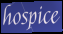
hospice